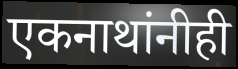
एकनाथांनीही